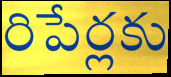
రిపేర్లకు